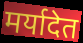
मर्यादेत